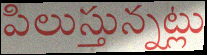
పిలుస్తున్నట్లు